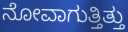
ನೋವಾಗುತ್ತಿತ್ತು